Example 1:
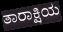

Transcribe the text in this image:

ತಾರಾಕ್ಷಿಯ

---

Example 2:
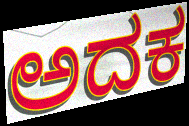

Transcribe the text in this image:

ಅದಕ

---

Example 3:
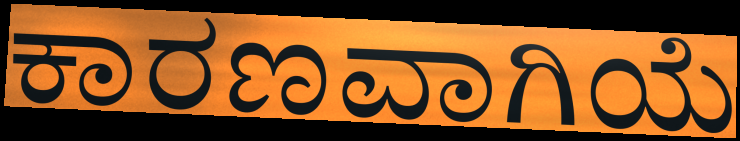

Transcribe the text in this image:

ಕಾರಣವಾಗಿಯೆ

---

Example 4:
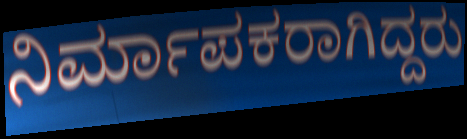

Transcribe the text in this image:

ನಿರ್ಮಾಪಕರಾಗಿದ್ದರು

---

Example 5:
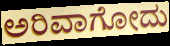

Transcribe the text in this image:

ಅರಿವಾಗೋದು